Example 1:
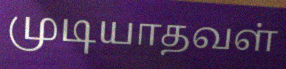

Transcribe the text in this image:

முடியாதவள்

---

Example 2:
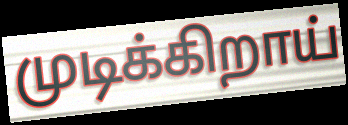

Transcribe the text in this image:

முடிக்கிறாய்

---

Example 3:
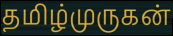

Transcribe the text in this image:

தமிழ்முருகன்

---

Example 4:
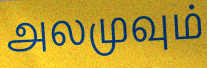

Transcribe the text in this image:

அலமுவும்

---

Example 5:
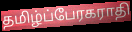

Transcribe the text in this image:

தமிழ்ப்பேரகராதி